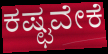
ಕಷ್ಟವೇಕೆ